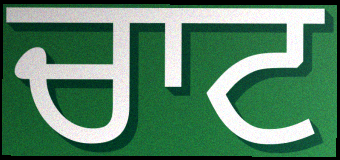
ਚਾਟ